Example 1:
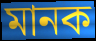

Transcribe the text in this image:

মানক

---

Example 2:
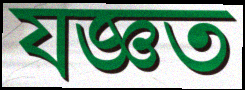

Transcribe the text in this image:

যজ্ঞত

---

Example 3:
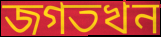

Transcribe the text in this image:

জগতখন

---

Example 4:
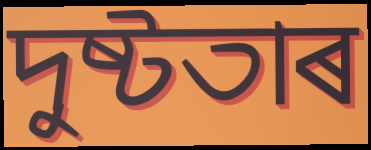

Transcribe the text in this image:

দুষ্টতাৰ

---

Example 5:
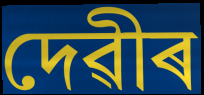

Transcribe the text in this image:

দেৱীৰ